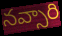
నవ్సారి